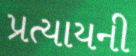
પ્રત્યાયની